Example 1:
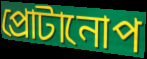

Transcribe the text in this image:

প্রোটানোপ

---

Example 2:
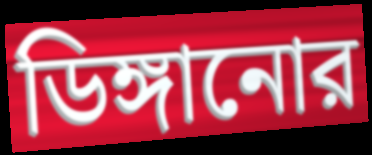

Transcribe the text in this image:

ডিঙ্গানোর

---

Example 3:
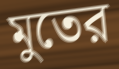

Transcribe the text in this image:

মুতের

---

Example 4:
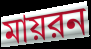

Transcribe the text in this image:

মায়রন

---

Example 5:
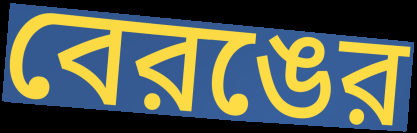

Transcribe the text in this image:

বেরঙের